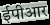
ईपीआर